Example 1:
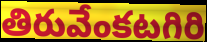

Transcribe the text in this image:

తిరువేంకటగిరి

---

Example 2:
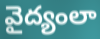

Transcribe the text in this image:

వైద్యంలా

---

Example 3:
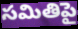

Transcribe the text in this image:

సమితిపై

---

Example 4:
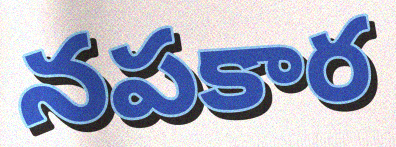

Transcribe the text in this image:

నపకార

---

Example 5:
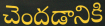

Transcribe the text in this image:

చెందడానికి